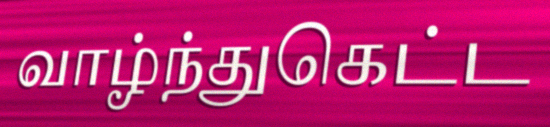
வாழ்ந்துகெட்ட